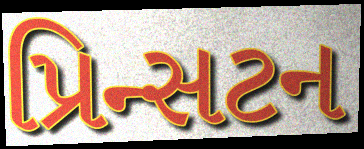
પ્રિન્સટન